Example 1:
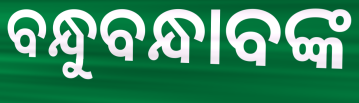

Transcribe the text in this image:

ବନ୍ଧୁବନ୍ଧାବଙ୍କ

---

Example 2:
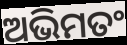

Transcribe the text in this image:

ଅଭିମତଂ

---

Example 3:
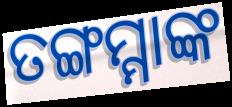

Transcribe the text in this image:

ତଙ୍ଗମ୍ମାଙ୍କ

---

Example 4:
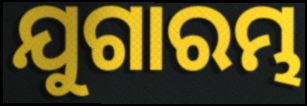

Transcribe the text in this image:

ଯୁଗାରମ୍ଭ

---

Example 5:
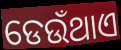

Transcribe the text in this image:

ଡେଉଁଥାଏ